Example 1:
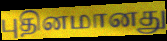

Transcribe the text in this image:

புதினமானது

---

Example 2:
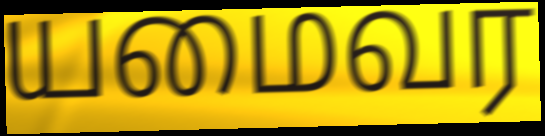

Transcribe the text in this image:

யமைவர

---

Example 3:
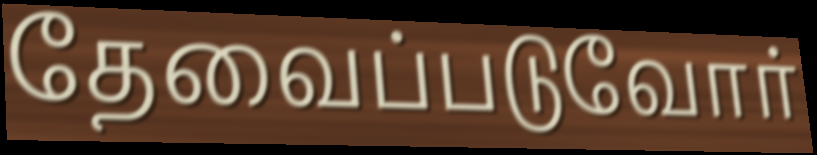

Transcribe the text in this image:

தேவைப்படுவோர்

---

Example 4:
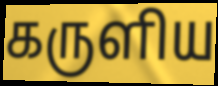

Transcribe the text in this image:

கருளிய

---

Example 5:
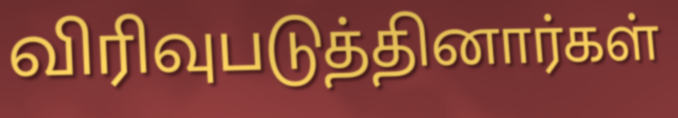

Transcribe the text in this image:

விரிவுபடுத்தினார்கள்